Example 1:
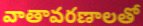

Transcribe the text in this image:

వాతావరణాలతో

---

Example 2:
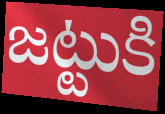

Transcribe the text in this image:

జట్టుకి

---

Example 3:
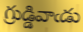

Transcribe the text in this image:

గ్రుడ్డివాఁడు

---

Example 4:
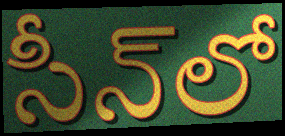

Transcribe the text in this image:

సీన్‌లో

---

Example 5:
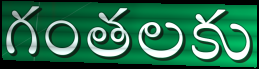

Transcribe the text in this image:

గంతలకు